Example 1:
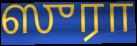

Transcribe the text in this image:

ஸுரா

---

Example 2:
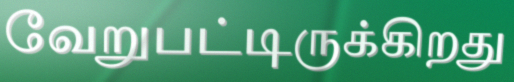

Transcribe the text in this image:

வேறுபட்டிருக்கிறது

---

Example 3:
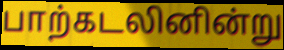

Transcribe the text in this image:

பாற்கடலினின்று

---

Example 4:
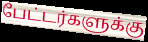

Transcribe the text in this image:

பேட்டர்களுக்கு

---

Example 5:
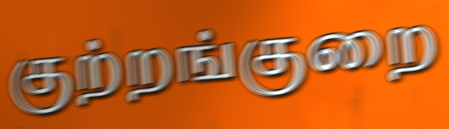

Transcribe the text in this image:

குற்றங்குறை